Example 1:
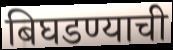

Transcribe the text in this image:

बिघडण्याची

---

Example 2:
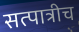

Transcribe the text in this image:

सत्पात्रीच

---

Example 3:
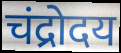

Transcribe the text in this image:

चंद्रोदय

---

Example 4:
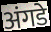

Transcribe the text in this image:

अंगडे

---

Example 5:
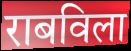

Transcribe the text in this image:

राबविला